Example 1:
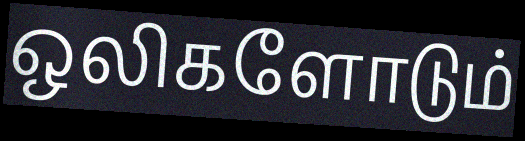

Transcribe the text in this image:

ஒலிகளோடும்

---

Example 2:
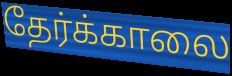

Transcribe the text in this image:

தேர்க்காலை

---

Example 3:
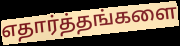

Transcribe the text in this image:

எதார்த்தங்களை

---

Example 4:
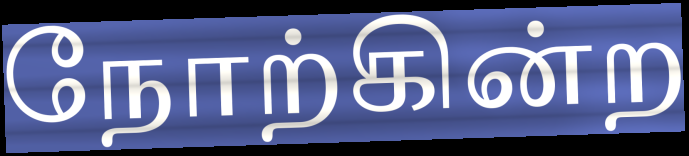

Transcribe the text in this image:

நோற்கின்ற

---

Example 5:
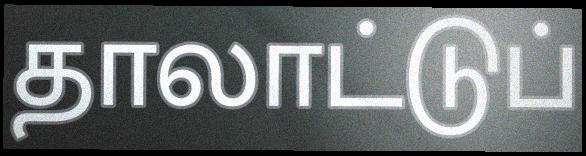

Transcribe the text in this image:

தாலாட்டுப்